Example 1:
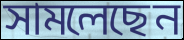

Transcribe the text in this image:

সামলেছেন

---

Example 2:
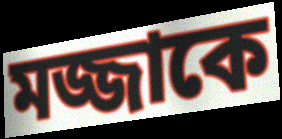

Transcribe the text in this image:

মজ্জাকে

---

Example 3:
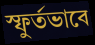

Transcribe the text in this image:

স্ফুর্তভাবে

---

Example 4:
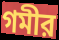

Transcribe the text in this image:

গমীর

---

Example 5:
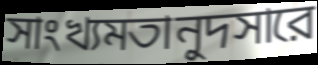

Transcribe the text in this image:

সাংখ্যমতানুদসারে